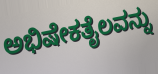
ಅಭಿಷೇಕತೈಲವನ್ನು